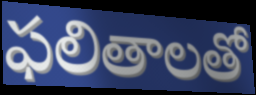
ఫలితాలతో